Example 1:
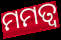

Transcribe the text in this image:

ମମତ୍ୱ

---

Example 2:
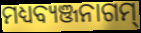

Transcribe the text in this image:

ମଧ୍ୟବ୍ୟଞ୍ଜନାଗମ୍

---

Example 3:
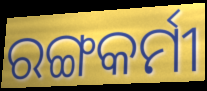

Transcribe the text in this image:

ରଙ୍ଗକର୍ମୀ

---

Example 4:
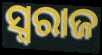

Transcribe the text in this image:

ସ୍ଵରାଜ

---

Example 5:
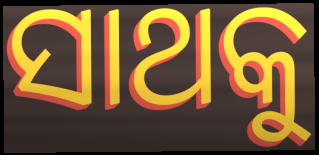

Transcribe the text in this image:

ସାଥକୁ